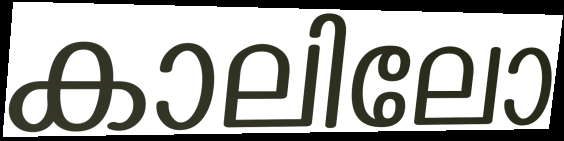
കാലിലോ